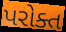
પરોક્ત